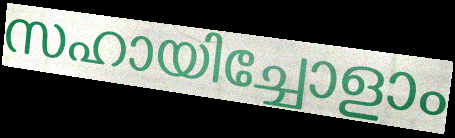
സഹായിച്ചോളാം